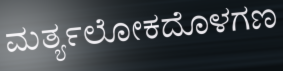
ಮರ್ತ್ಯಲೋಕದೊಳಗಣ